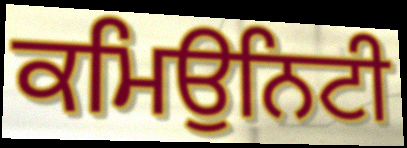
ਕਮਿਉਨਿਟੀ